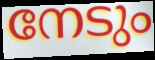
നേടും